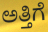
ಅತ್ತಿಗೆ